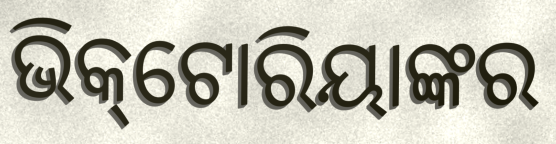
ଭିକ୍‌ଟୋରିୟାଙ୍କର